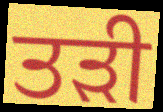
ਤੜੀ